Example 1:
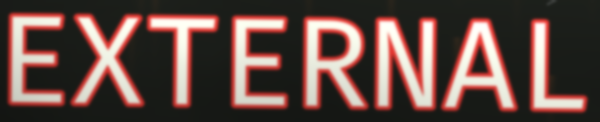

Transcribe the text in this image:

EXTERNAL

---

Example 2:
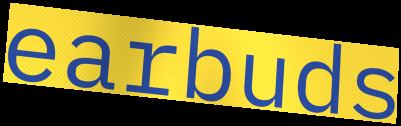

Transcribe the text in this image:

earbuds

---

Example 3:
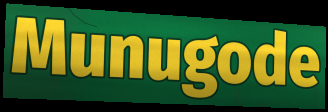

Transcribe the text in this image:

Munugode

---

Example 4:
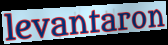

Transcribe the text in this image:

levantaron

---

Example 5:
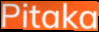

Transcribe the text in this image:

Pitaka